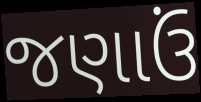
જણાઉં